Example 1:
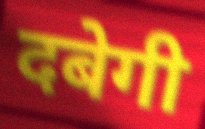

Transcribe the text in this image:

दबेगी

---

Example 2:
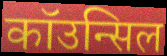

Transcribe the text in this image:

कॉउन्सिल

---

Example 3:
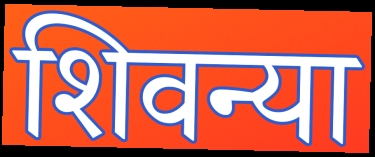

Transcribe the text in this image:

शिवन्या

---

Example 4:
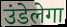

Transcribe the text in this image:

उंडेलेगा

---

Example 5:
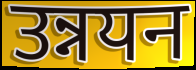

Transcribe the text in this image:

उन्नयन